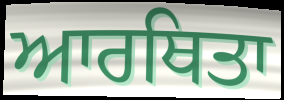
ਆਰਥਿਤਾ